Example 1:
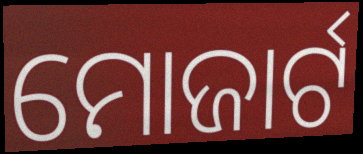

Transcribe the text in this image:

ମୋଜାର୍ଟ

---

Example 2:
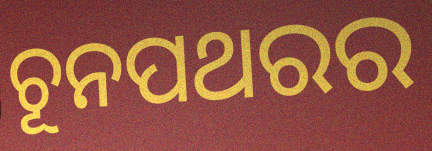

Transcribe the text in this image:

ଚୂନପଥରର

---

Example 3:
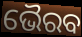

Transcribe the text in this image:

ଭୈରବ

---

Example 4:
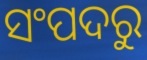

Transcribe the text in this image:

ସଂପଦରୁ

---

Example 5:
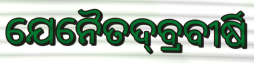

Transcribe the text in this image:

ଯେନୈତଦ୍‌ବ୍ରବୀର୍ଷି